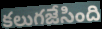
కలుగజేసింది